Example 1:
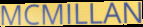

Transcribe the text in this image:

MCMILLAN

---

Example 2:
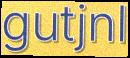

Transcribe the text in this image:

gutjnl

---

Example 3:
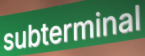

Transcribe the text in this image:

subterminal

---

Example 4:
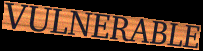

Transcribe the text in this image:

VULNERABLE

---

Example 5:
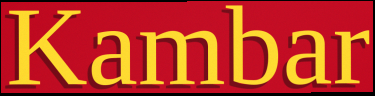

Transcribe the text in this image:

Kambar